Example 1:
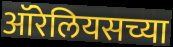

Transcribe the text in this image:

ऑरेलियसच्या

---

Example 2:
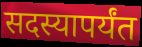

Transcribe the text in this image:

सदस्यापर्यंत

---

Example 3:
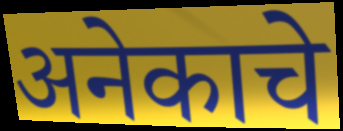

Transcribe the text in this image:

अनेकाचे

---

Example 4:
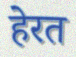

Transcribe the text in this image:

हेरत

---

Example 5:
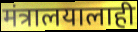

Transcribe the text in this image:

मंत्रालयालाही